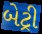
બેટ્રી